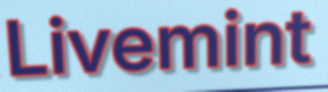
Livemint